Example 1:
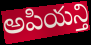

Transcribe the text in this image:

అపియన్తి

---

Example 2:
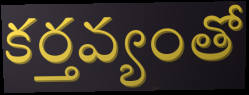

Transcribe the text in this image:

కర్తవ్యంతో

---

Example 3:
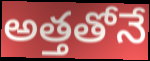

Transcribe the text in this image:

అత్తతోనే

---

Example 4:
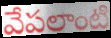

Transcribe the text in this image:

వేపలాంటి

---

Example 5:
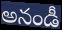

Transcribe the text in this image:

అనండీ